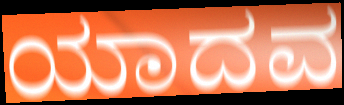
ಯಾದವ